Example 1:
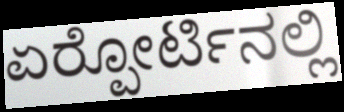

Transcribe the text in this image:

ಏರ್‍ಪೋರ್ಟಿನಲ್ಲಿ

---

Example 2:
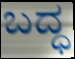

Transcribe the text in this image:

ಬದ್ಧ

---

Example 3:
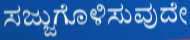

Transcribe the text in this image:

ಸಜ್ಜುಗೊಳಿಸುವುದೇ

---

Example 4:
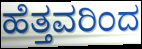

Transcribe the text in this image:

ಹೆತ್ತವರಿಂದ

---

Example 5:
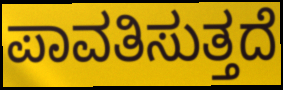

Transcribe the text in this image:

ಪಾವತಿಸುತ್ತದೆ